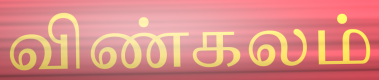
விண்கலம்